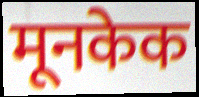
मूनकेक